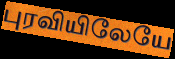
புரவியிலேயே